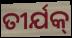
ତୀର୍ଯକ୍